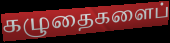
கழுதைகளைப்